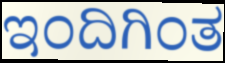
ಇಂದಿಗಿಂತ